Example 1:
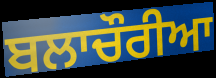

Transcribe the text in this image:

ਬਲਾਚੌਰੀਆ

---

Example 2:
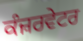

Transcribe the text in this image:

ਕੰਜ਼ਰਵੇਟਰ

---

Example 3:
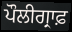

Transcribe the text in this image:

ਪੌਲੀਗ੍ਰਾਫ਼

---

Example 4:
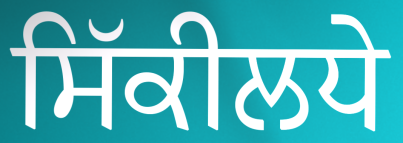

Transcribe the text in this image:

ਸਿੱਕੀਲਧੇ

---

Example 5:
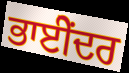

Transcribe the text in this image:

ਭਾਈੇਂਦਰ